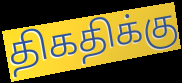
திகதிக்கு